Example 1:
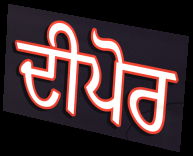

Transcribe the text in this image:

ਦੀਪੋਰ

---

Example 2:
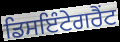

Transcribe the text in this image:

ਡਿਸਇੰਟੇਗਰੈਂਟ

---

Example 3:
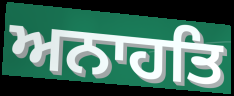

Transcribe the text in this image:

ਅਨਾਹਤਿ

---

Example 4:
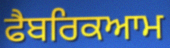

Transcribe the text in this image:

ਫੈਬਰਿਕਆਮ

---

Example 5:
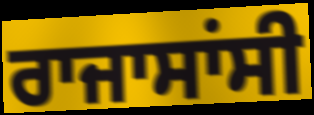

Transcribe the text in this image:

ਰਾਜਾਸਾਂਸੀ